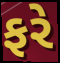
ફરે